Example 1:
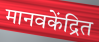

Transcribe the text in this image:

मानवकेंद्रित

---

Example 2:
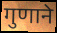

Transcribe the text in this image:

गुणाने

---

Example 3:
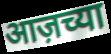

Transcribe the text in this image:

आज़च्या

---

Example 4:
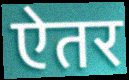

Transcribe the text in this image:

ऐतर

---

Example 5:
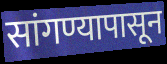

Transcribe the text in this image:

सांगण्यापासून